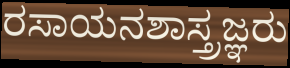
ರಸಾಯನಶಾಸ್ತ್ರಜ್ಞರು